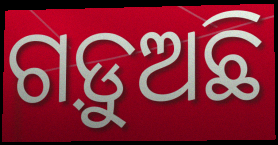
ଗଡ଼ୁଅଛି